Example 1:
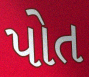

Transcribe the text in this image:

પોત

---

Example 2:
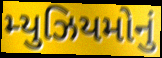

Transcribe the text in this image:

મ્યુઝિયમોનું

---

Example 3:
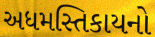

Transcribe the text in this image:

અધમસ્તિકાયનો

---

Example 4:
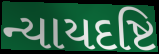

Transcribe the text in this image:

ન્યાયદષ્ટિ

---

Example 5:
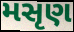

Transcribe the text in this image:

મસૃણ